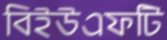
বিইউএফটি